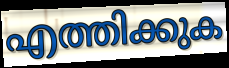
എത്തിക്കുക